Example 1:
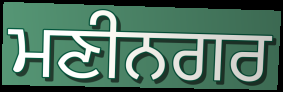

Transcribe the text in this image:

ਮਣੀਨਗਰ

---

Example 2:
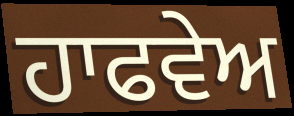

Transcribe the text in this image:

ਹਾਫਵੇਅ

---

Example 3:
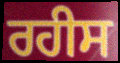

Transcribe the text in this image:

ਰਹੀਸ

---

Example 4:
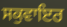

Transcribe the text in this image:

ਸਕੁਵਾਇਰ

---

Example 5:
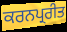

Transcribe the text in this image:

ਕਰਨਪ੍ਰਰੀਤ